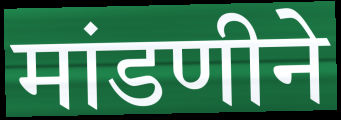
मांडणीने